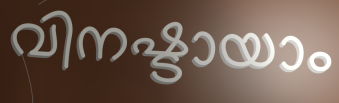
വിനഷ്ടായാം